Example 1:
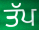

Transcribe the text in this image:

ਤੱਪ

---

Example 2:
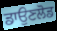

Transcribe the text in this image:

ਡਾਉਣਲੋਡ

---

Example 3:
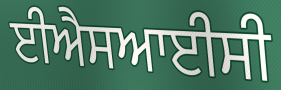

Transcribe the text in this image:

ਈਐਸਆਈਸੀ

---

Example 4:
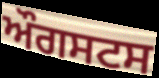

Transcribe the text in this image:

ਔਗਸਟਸ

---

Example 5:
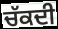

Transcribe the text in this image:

ਚੱਕਦੀ